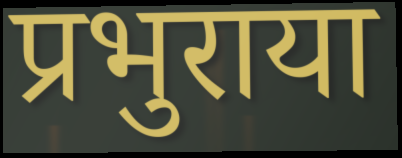
प्रभुराया